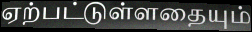
ஏற்பட்டுள்ளதையும்